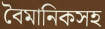
বৈমানিকসহ